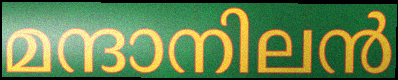
മന്ദാനിലൻ